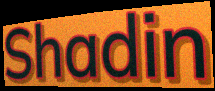
Shadin